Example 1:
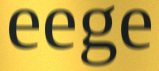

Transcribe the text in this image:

eege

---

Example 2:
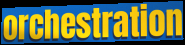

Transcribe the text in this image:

orchestration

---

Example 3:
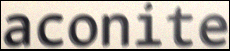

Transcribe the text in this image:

aconite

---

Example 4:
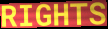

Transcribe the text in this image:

RIGHTS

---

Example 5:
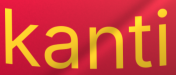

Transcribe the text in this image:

kanti